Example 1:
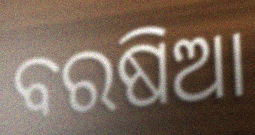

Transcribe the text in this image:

ବରଷିଆ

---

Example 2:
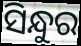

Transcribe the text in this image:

ସିନ୍ଧୁର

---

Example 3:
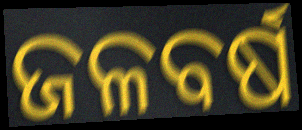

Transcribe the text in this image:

ଜଳବର୍ଷ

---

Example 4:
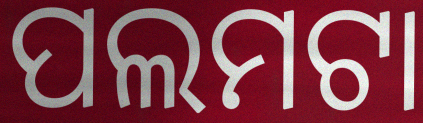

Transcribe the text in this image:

ପଲମଟା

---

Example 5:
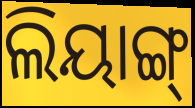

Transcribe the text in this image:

ଲିୟାଙ୍ଗ୍